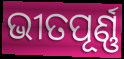
ଭୀତପୂର୍ଣ୍ଣ